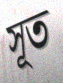
সূত